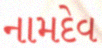
નામદેવ